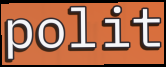
polit